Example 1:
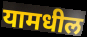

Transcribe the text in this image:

यामधील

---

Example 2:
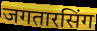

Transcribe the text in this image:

जगतारसिंग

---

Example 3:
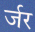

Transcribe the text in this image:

र्जर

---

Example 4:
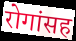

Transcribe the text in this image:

रोगांसह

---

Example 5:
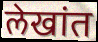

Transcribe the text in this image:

लेखांत